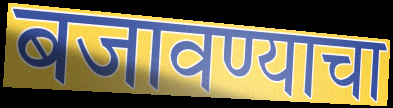
बजावण्याचा